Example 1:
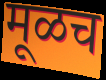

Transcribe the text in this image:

मूळच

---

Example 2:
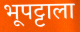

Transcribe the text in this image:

भूपट्टाला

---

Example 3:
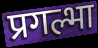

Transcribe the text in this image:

प्रगल्भा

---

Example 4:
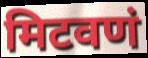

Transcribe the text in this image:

मिटवणं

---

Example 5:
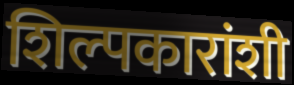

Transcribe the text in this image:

शिल्पकारांशी